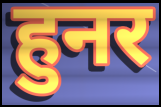
हुनर